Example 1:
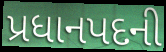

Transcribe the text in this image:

પ્રધાનપદની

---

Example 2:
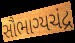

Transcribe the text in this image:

સૌભાગ્યચંદ્ર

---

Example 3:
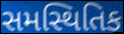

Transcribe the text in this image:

સમસ્થિતિક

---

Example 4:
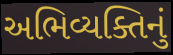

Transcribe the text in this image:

અભિવ્યક્તિનું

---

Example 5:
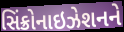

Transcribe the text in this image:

સિંક્રોનાઇઝેશનને